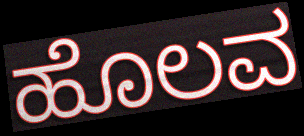
ಹೊಲವ